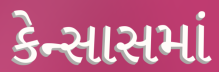
કેન્સાસમાં